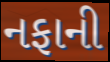
નફાની